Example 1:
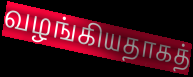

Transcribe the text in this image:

வழங்கியதாகத்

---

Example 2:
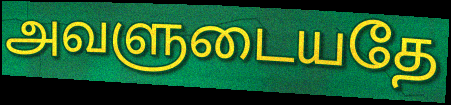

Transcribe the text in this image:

அவளுடையதே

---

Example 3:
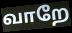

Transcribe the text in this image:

வாறே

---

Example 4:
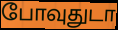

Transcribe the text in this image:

போவுதுடா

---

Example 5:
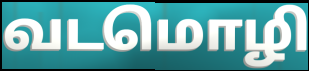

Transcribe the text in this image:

வடமொழி